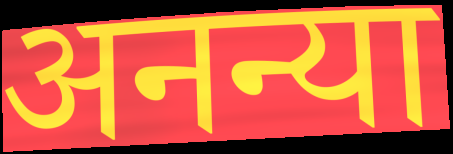
अनन्या